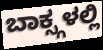
ಬಾಕ್ಸ್ಗಳಲ್ಲಿ